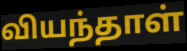
வியந்தாள்